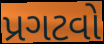
પ્રગટવો